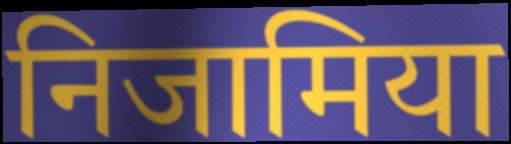
निजामिया